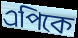
এপিকে